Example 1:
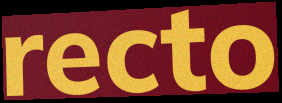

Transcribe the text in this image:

recto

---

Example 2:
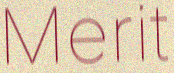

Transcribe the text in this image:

Merit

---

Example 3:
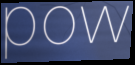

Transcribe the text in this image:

pow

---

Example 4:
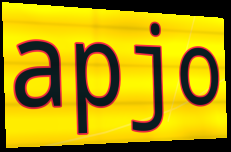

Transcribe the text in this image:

apjo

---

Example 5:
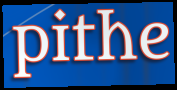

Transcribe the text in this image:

pithe